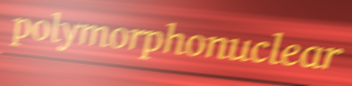
polymorphonuclear